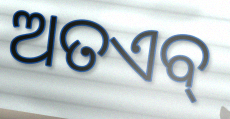
ଅତଏବ୍